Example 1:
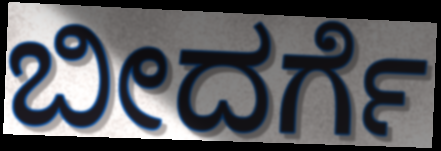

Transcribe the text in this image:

ಬೀದರ್ಗೆ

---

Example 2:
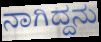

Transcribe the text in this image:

ನಾಗಿದ್ದನು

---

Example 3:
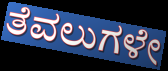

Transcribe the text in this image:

ತೆವಲುಗಳೇ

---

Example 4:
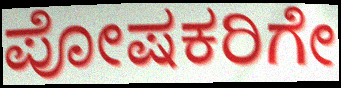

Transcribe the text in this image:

ಪೋಷಕರಿಗೇ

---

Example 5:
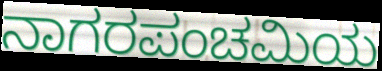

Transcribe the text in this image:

ನಾಗರಪಂಚಮಿಯ